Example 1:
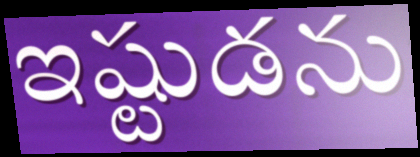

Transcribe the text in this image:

ఇష్టుడను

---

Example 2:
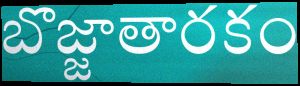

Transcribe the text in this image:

బొజ్జాతారకం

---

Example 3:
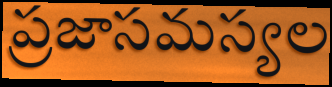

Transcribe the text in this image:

ప్రజాసమస్యల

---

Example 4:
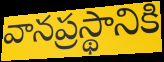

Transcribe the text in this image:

వానప్రస్థానికి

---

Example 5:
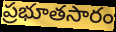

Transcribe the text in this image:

ప్రభూతసారం